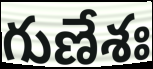
గుణేశః